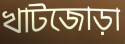
খাটজোড়া